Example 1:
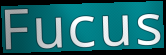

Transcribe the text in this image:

Fucus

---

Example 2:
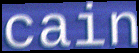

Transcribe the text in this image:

cain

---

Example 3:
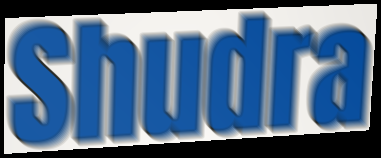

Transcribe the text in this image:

Shudra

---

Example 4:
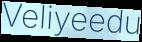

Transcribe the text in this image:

Veliyeedu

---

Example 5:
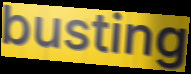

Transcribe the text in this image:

busting